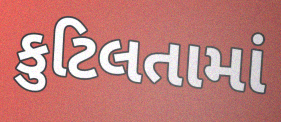
કુટિલતામાં